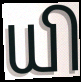
யி